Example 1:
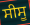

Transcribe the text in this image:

ਸੀਸੂ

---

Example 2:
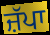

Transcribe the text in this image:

ਜ਼ੱਪਾ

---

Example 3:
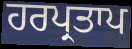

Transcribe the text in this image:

ਹਰਪ੍ਰਤਾਪ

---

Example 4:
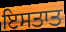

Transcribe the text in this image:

ਇਸਤਾਤ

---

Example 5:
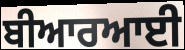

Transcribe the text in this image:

ਬੀਆਰਆਈ